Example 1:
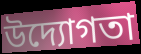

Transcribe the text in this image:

উদ্যোগতা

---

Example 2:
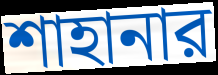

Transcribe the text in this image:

শাহানার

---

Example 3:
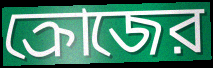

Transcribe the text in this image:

ক্রোজের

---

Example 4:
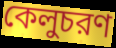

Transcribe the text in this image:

কেলুচরণ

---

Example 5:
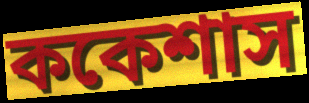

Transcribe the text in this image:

ককেশাস